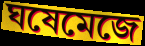
ঘষেমেজে